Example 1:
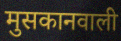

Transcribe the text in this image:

मुसकानवाली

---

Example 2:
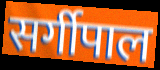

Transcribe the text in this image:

सर्गीपाल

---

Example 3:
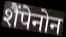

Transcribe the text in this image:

शैंपेनोन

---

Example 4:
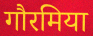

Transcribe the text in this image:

गौरमिया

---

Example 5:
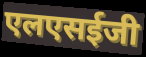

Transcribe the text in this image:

एलएसईजी